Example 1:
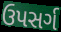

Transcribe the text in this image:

ઉપસર્ગ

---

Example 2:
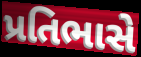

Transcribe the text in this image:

પ્રતિભાસે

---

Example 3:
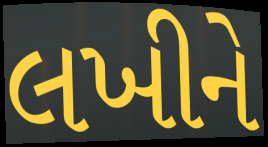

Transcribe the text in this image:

લખીને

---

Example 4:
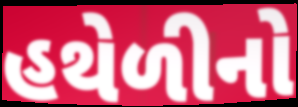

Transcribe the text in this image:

હથેળીનો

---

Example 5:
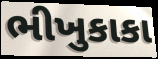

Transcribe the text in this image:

ભીખુકાકા